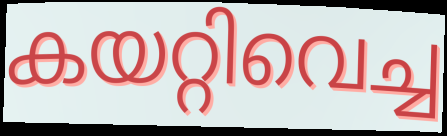
കയറ്റിവെച്ച